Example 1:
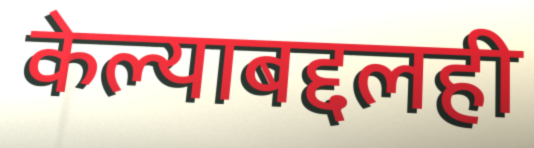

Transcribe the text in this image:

केल्याबद्दलही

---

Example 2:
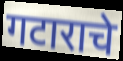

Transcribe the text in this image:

गटाराचे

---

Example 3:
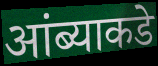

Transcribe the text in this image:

आंब्याकडे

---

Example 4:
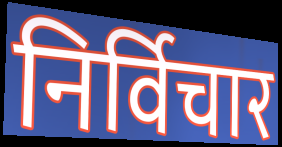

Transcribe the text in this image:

निर्विचार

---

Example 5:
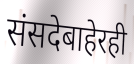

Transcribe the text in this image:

संसदेबाहेरही